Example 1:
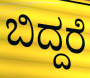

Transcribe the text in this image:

ಬಿದ್ದರೆ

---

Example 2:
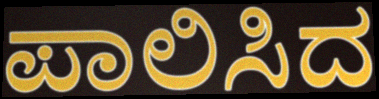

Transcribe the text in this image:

ಪಾಲಿಸಿದ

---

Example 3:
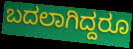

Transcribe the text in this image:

ಬದಲಾಗಿದ್ದರೂ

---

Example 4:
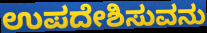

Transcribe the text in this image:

ಉಪದೇಶಿಸುವನು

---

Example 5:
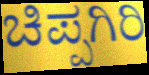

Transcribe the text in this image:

ಚಿಪ್ಪಗಿರಿ